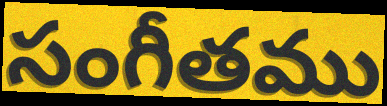
సంగీతము